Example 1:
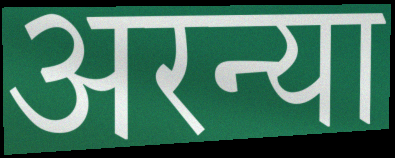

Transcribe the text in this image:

अरन्या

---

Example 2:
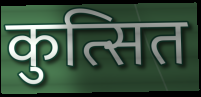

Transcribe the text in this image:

कुत्सित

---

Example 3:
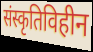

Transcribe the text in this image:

संस्कृतिविहीन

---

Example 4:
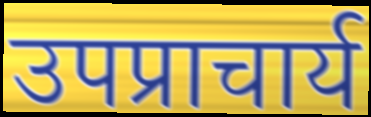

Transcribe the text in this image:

उपप्राचार्य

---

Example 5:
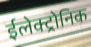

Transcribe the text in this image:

ईलेक्ट्रोनिक